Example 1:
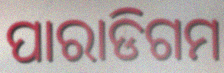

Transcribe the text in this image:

ପାରାଡିଗମ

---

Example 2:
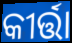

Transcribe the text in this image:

କୀର୍ତ୍ତା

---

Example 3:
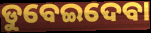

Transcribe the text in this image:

ଡୁବେଇଦେବା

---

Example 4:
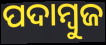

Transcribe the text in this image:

ପଦାମ୍ବୁଜ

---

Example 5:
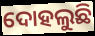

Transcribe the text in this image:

ଦୋହଲୁଛି